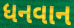
ધનવાન